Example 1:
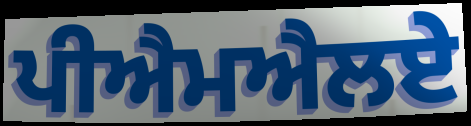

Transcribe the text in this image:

ਪੀਐਮਐਲਏ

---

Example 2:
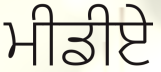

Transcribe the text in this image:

ਮੀਡੀਏ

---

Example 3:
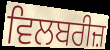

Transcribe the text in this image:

ਵਿਲਬਰੀਜ਼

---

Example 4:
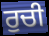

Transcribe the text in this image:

ਰੁਚੀ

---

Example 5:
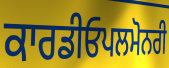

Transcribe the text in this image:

ਕਾਰਡੀਓਪਲਮੋਨਰੀ